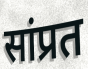
सांप्रत